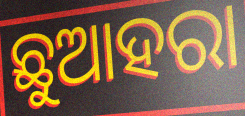
ଛୁଆହରା